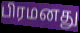
பிரமனது